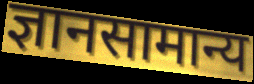
ज्ञानसामान्य